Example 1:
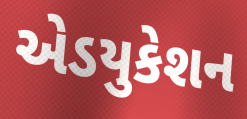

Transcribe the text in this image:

એડયુકેશન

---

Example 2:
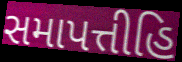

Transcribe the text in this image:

સમાપત્તીહિ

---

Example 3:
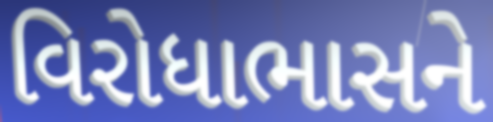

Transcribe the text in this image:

વિરોધાભાસને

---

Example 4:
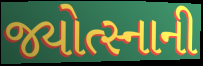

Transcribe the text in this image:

જ્યોત્સ્નાની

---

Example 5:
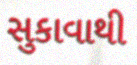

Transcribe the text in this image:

સુકાવાથી